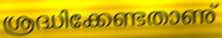
ശ്രദ്ധിക്കേണ്ടതാണു്